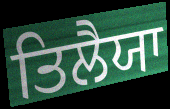
ਤਿਲੈਯਾ